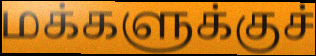
மக்களுக்குச்